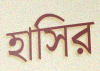
হাসির